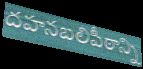
దహనబలిపీఠాన్ని